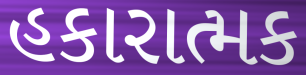
હકારાત્મક